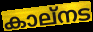
കാല്നട